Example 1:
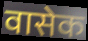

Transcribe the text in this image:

वासेक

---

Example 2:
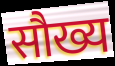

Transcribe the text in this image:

सौख्य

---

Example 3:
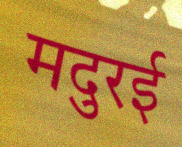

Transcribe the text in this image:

मदुरई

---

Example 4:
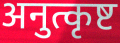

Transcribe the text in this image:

अनुत्कृष्ट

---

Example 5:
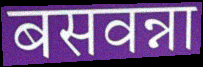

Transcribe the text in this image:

बसवन्ना